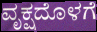
ವೃಕ್ಷದೊಳಗೆ